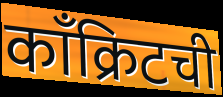
काँक्रिटची